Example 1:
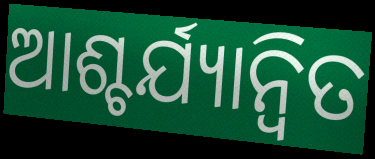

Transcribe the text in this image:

ଆଶ୍ଚର୍ଯ୍ୟାନ୍ୱିତ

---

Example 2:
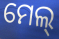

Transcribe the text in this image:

ମେଲ୍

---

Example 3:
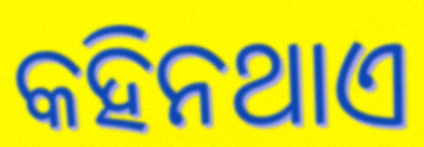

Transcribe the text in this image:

କହିନଥାଏ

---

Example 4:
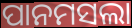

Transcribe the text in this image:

ପାନମସଲା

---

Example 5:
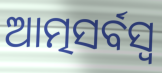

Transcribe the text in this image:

ଆତ୍ମସର୍ବସ୍ଵ